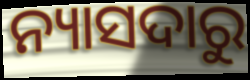
ନ୍ୟାସଦାରୁ